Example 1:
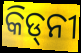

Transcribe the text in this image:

କିଡ୍‌ନୀ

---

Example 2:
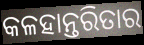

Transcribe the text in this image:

କଳହାନ୍ତରିତାର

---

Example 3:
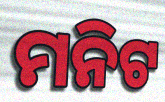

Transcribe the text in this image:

ମନିଟ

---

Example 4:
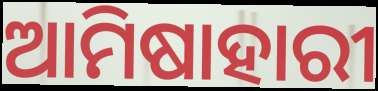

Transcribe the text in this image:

ଆମିଷାହାରୀ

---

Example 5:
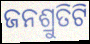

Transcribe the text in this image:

ଜନଶ୍ରୁତିଟି